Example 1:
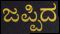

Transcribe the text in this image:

ಜಪ್ಪಿದ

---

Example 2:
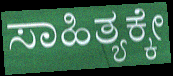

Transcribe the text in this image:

ಸಾಹಿತ್ಯಕ್ಕೇ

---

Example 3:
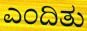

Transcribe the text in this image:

ಎಂದಿತು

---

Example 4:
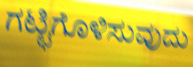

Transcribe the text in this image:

ಗಟ್ಟಿಗೊಳಿಸುವುದು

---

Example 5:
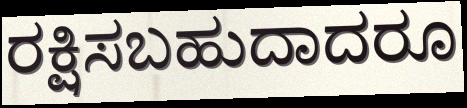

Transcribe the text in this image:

ರಕ್ಷಿಸಬಹುದಾದರೂ